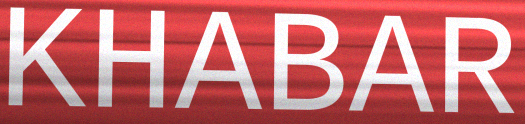
KHABAR